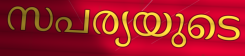
സപര്യയുടെ